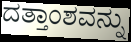
ದತ್ತಾಂಶವನ್ನು